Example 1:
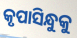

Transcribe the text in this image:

କୃପାସିନ୍ଧୁକୁ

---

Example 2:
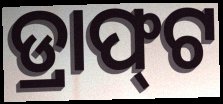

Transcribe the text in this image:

ଡ୍ରାଫ୍‍ଟ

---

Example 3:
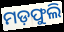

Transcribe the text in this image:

ମଡ଼ଫୁଲି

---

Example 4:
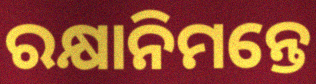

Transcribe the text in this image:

ରକ୍ଷାନିମନ୍ତେ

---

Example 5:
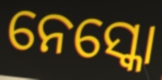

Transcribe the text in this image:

ନେସ୍କୋ